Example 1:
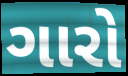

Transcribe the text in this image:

ગારો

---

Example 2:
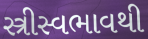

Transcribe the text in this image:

સ્ત્રીસ્વભાવથી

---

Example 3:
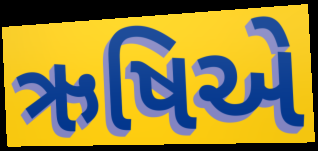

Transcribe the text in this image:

ઋષિએ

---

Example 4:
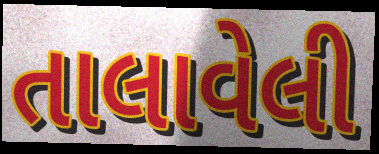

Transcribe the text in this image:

તાલાવેલી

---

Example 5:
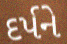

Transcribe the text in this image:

દર્પને